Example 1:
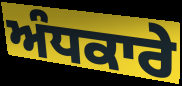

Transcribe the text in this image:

ਅੰਧਕਾਰੇ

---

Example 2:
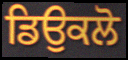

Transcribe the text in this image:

ਡਿਉਕਲੋ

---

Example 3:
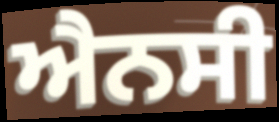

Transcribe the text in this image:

ਐਨਸੀ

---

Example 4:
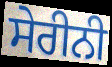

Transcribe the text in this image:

ਸੇਰੀਨੀ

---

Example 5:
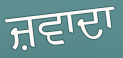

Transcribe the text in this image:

ਜ਼ਵਾਦਾ